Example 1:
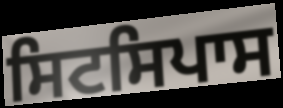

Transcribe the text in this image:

ਸਿਟਸਿਪਾਸ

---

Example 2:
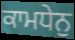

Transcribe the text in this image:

ਕਾਮਧੇਨੁ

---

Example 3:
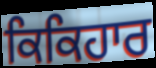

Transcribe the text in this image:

ਕਿਕਿਹਾਰ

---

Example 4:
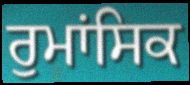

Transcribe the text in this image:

ਰੁਮਾਂਸਿਕ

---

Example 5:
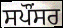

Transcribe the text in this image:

ਸਪੌਂਸਰ